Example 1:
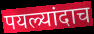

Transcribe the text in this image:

पयल्यांदाच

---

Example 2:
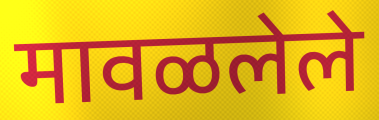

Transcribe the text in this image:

मावळलेले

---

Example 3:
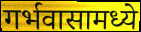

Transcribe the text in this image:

गर्भवासामध्ये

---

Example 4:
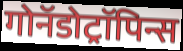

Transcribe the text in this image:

गोनॅडोट्रॉपिन्स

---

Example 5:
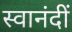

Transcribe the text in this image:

स्वानंदीं